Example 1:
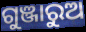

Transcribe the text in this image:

ଗୁଞ୍ଜାରୁଅ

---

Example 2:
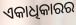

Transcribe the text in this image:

ଏକାଧିକାରର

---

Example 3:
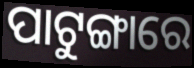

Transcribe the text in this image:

ପାଟୁଙ୍ଗାରେ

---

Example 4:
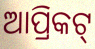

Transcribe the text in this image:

ଆପ୍ରିକଟ୍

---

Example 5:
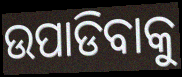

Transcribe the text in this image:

ଉପାଡିବାକୁ